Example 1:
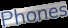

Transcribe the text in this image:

Phones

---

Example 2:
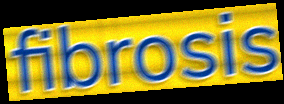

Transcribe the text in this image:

fibrosis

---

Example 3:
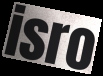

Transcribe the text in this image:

isro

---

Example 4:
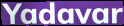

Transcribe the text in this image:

Yadavar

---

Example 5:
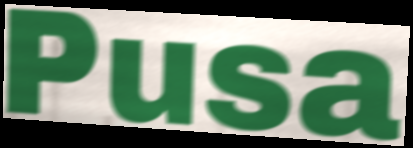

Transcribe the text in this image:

Pusa